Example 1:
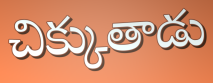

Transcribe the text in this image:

చిక్కుతాడు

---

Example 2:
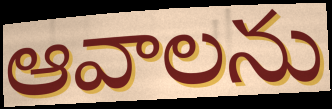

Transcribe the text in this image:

ఆవాలను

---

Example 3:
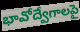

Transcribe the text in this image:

భావోద్వేగాలపై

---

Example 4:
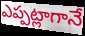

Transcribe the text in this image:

ఎప్పట్లాగానే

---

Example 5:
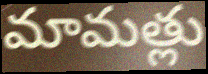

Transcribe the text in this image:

మామత్లు